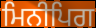
ਮਿਨੀਪਿਗ